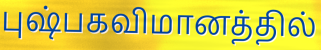
புஷ்பகவிமானத்தில்